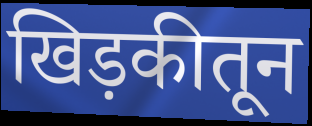
खिड़कीतून